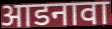
आडनावा